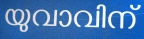
യുവാവിന്